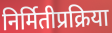
निर्मितीप्रक्रिया